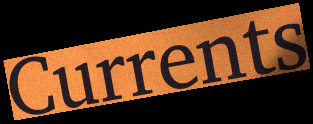
Currents